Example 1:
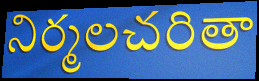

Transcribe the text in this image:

నిర్మలచరితా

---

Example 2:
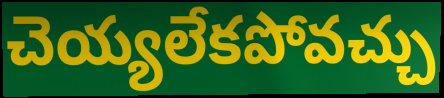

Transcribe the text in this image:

చెయ్యలేకపోవచ్చు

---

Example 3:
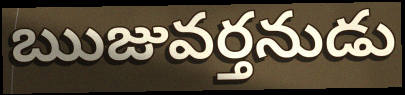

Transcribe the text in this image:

ఋజువర్తనుడు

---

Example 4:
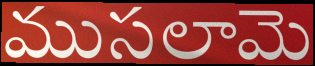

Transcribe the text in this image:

ముసలామె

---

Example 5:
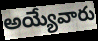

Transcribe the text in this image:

అయ్యేవారు